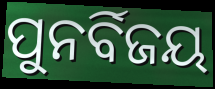
ପୁନର୍ବିଜୟ